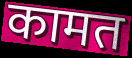
कामत